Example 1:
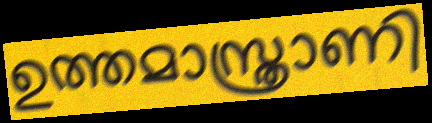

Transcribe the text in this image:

ഉത്തമാസ്ത്രാണി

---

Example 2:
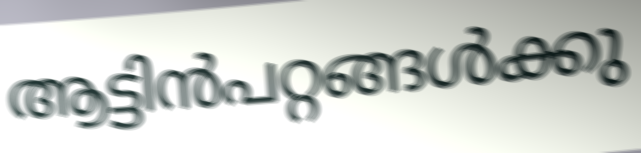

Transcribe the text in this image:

ആട്ടിൻപറ്റങ്ങൾക്കു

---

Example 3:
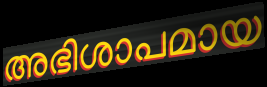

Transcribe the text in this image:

അഭിശാപമായ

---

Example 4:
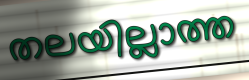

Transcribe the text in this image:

തലയില്ലാത്ത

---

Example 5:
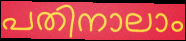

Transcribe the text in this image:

പതിനാലാം